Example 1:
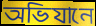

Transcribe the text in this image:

অভিযানে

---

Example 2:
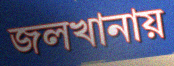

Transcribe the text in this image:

জলখানায়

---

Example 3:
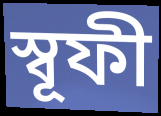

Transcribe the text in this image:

স্বূফী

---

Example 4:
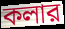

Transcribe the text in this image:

কলার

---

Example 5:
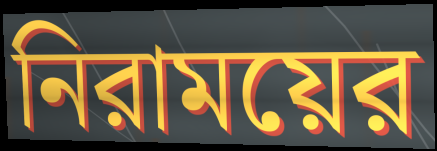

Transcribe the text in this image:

নিরাময়ের